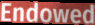
Endowed